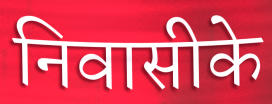
निवासीके